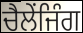
ਚੈਲੇਂਜਿੰਗ